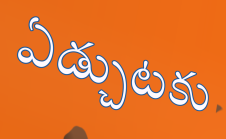
ఏడ్చుటకు